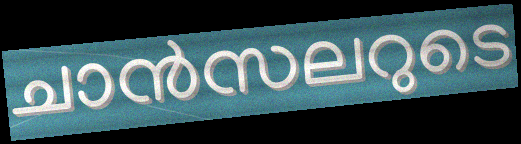
ചാൻസലറുടെ